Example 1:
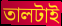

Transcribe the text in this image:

তালটাই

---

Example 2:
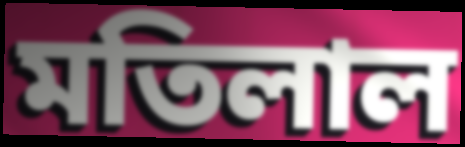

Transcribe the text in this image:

মতিলাল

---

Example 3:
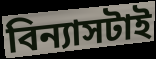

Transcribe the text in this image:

বিন্যাসটাই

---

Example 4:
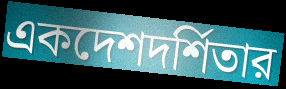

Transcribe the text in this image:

একদেশদর্শিতার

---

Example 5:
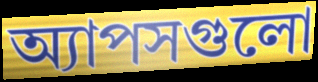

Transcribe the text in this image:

অ্যাপসগুলো